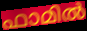
ഫാമിൽ